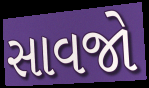
સાવજો